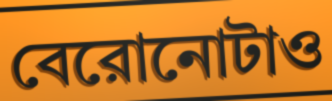
বেরোনোটাও